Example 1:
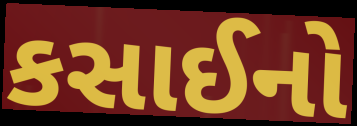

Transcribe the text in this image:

કસાઈનો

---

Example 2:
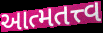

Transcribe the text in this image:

આત્મતત્ત્વ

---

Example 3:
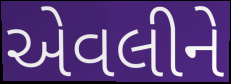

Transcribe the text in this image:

એવલીને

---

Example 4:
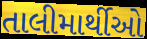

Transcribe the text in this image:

તાલીમાર્થીઓ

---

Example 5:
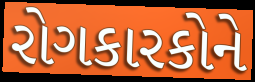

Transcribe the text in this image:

રોગકારકોને